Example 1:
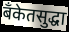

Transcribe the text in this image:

बँकेतसुद्धा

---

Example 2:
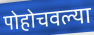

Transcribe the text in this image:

पोहोचवल्या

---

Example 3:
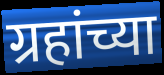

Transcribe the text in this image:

ग्रहांच्या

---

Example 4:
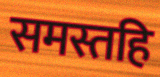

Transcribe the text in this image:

समस्तहि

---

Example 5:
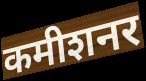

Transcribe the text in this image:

कमीशनर